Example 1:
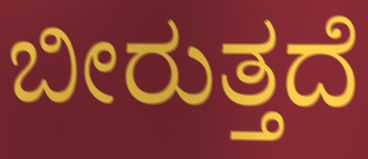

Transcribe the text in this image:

ಬೀರುತ್ತದೆ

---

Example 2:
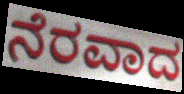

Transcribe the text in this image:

ನೆರವಾದ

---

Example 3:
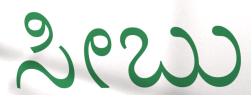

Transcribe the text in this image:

ಸೀಬು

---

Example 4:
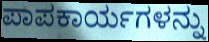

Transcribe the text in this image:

ಪಾಪಕಾರ್ಯಗಳನ್ನು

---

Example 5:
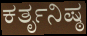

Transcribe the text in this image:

ಕರ್ತೃನಿಷ್ಠ